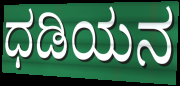
ಧಡಿಯನ